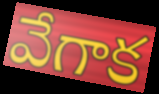
వేగాక